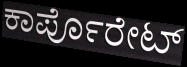
ಕಾರ್ಪೊರೇಟ್